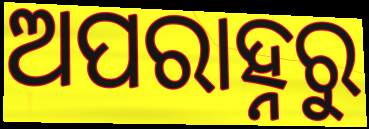
ଅପରାହ୍ନରୁ